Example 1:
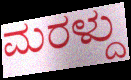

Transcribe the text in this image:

ಮರಳ್ದು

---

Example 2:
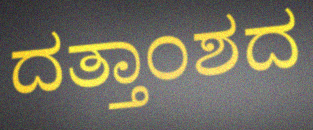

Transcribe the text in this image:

ದತ್ತಾಂಶದ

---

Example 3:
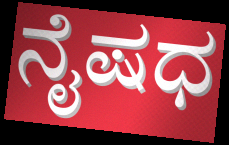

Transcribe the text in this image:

ನೈಷಧ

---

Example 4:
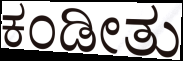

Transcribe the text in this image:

ಕಂಡೀತು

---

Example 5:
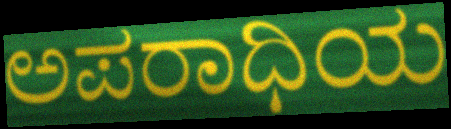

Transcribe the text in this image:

ಅಪರಾಧಿಯ